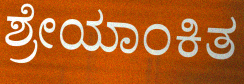
ಶ್ರೇಯಾಂಕಿತ